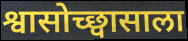
श्वासोच्छ्वासाला